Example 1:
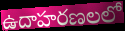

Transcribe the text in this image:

ఉదాహరణలలో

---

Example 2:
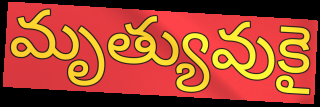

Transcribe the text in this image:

మృత్యువుకై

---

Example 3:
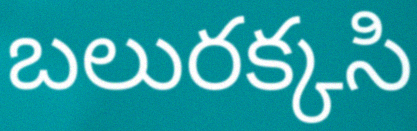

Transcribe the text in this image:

బలురక్కసి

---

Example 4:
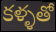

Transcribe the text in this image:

కళ్ళతో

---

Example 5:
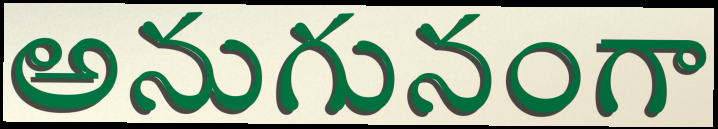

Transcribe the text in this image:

అనుగునంగా